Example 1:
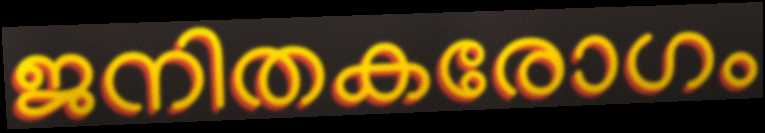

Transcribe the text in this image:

ജനിതകരോഗം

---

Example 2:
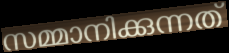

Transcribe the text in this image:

സമ്മാനിക്കുന്നത്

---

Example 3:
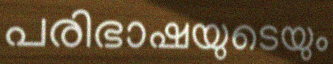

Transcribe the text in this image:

പരിഭാഷയുടെയും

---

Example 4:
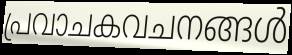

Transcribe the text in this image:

പ്രവാചകവചനങ്ങൾ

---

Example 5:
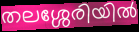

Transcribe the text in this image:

തലശ്ശേരിയിൽ